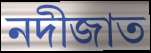
নদীজাত